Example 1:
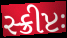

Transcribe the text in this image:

સ્ક્રીપ્ટઃ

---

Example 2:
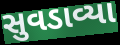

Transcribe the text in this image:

સુવડાવ્યા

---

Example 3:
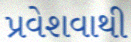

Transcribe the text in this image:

પ્રવેશવાથી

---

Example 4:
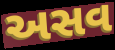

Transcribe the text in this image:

અસવ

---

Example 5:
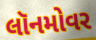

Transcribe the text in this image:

લૉનમોવર